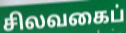
சிலவகைப்